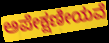
ಅಪೇಕ್ಷಣೀಯವೆ